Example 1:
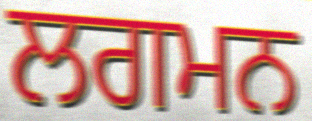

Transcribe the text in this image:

ਲਗਮਨ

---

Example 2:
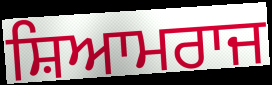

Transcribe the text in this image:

ਸ਼ਿਆਮਰਾਜ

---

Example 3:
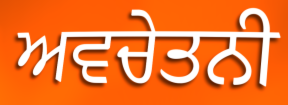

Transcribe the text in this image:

ਅਵਚੇਤਨੀ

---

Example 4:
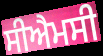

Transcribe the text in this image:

ਸੀਐਮਸੀ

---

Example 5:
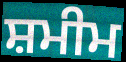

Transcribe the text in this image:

ਸ਼ਮੀਮ